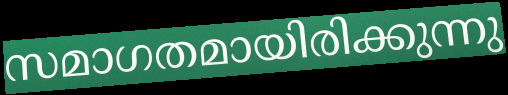
സമാഗതമായിരിക്കുന്നു